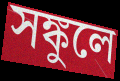
সঙ্কুলে